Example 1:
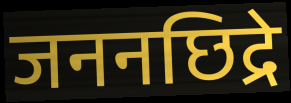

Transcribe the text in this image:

जननछिद्रे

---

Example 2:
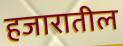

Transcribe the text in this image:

हजारातील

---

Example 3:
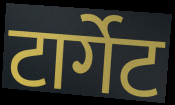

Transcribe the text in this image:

टार्गेट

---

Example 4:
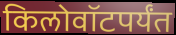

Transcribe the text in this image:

किलोवॉटपर्यंत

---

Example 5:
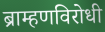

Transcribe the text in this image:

ब्राम्हणविरोधी